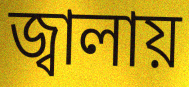
জ্বালায়